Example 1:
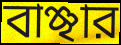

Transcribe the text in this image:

বাঞ্ছার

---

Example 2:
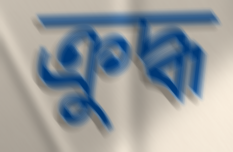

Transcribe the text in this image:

ক্রুদ্ধ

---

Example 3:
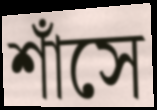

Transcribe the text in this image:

শাঁসে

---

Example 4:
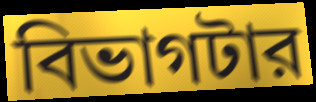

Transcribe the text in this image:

বিভাগটার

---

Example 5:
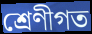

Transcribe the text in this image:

শ্রেণীগত